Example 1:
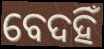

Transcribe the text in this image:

ବେଦହିଁ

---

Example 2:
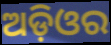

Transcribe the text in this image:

ଅଡ଼ିଓର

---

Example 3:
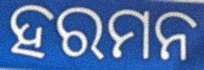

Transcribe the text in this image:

ହରମନ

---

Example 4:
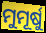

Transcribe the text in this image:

ମୁମୂର୍ଷୁ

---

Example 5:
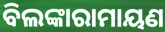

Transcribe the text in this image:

ବିଲଙ୍କାରାମାୟଣ